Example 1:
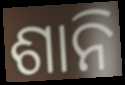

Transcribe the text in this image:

ଶାନି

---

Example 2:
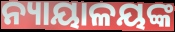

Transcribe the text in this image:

ନ୍ୟାୟାଳୟଙ୍କ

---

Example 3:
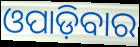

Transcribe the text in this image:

ଓପାଡ଼ିବାର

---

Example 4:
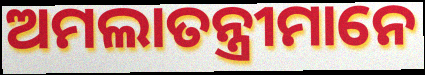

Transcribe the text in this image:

ଅମଲାତନ୍ତ୍ରୀମାନେ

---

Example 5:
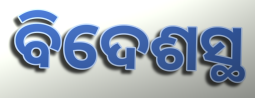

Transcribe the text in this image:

ବିଦେଶସ୍ଥ